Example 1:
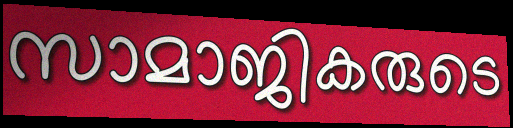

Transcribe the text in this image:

സാമാജികരുടെ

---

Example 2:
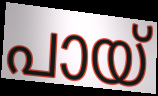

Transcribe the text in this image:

പായ്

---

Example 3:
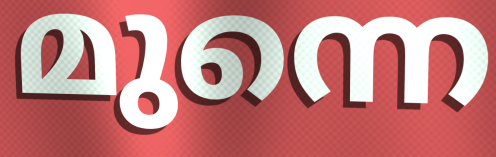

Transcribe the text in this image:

മുന്നെ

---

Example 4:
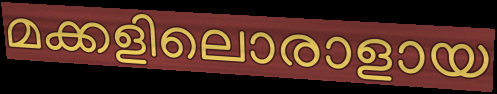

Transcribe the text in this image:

മക്കളിലൊരാളായ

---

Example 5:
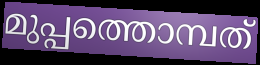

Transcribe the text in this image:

മുപ്പത്തൊമ്പത്